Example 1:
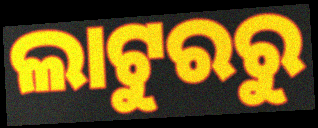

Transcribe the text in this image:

ଲାଟୁରରୁ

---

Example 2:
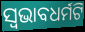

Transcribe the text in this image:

ସ୍ଵଭାବଧର୍ମଟି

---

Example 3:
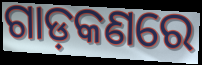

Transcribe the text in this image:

ଗାଡ଼କଣରେ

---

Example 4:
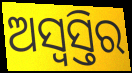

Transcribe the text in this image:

ଅସ୍ୱସ୍ତିର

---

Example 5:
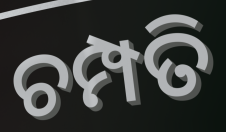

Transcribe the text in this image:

ଚମ୍ପତି